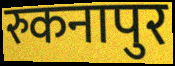
रुकनापुर